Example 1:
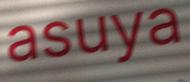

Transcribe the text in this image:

asuya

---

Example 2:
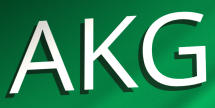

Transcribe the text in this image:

AKG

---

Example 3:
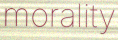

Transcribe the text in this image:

morality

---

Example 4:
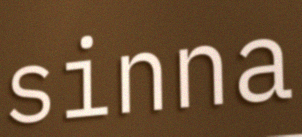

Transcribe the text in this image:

sinna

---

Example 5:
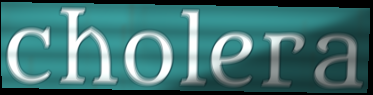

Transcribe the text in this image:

cholera